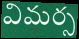
విమర్స